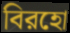
বিরহো